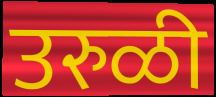
उरुळी